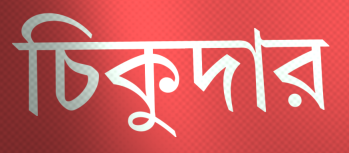
চিকুদার